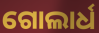
ଗୋଲାର୍ଧ